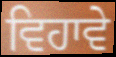
ਵਿਹਾਵੇ